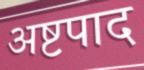
अष्टपाद